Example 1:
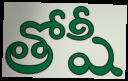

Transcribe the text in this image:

తోషీ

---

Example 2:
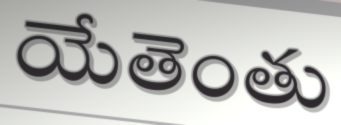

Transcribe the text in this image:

యేతెంతు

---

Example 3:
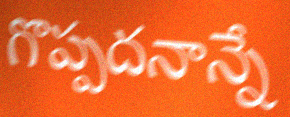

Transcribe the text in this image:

గొప్పదనాన్నే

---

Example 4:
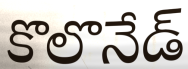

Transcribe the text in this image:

కొలొనేడ్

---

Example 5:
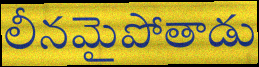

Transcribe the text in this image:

లీనమైపోతాడు